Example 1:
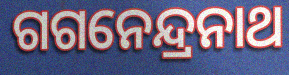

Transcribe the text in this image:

ଗଗନେନ୍ଦ୍ରନାଥ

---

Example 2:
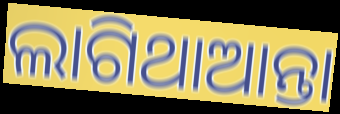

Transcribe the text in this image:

ଲାଗିଥାଆନ୍ତା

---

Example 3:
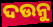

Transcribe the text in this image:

ଦଉନୁ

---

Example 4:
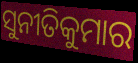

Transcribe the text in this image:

ସୁନୀତିକୁମାର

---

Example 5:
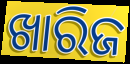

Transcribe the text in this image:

ଖାରିଜ